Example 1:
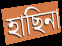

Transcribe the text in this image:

হাছিনা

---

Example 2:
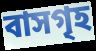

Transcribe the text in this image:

বাসগৃহ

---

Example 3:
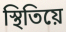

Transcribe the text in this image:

স্থিতিয়ে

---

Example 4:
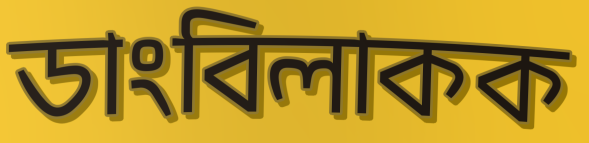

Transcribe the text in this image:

ডাংবিলাকক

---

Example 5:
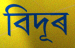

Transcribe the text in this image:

বিদূৰ